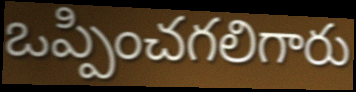
ఒప్పించగలిగారు